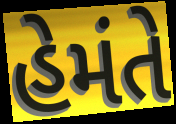
હેમંતે